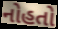
નોહતો